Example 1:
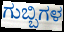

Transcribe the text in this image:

ಗುಬ್ಬಿಗಳ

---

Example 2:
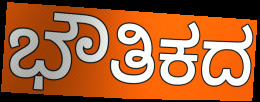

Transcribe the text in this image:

ಭೌತಿಕದ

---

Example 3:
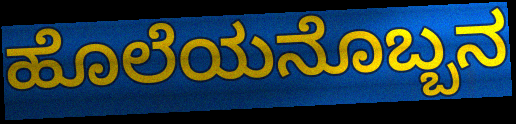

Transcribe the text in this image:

ಹೊಲೆಯನೊಬ್ಬನ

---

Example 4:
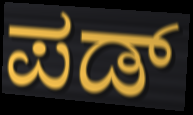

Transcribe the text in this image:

ಪಡ್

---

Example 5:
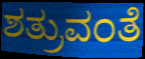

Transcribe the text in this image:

ಶತ್ರುವಂತೆ